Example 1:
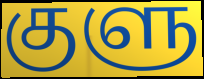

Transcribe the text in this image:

குளு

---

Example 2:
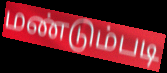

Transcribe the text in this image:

மண்டும்படி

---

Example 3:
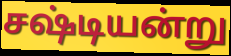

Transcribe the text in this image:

சஷ்டியன்று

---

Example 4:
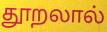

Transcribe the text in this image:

தூறலால்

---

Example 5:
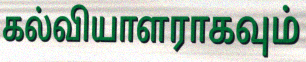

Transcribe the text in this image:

கல்வியாளராகவும்